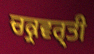
ਚਕ੍ਰਵਰ੍ਤੀ